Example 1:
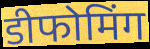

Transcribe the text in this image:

डीफोमिंग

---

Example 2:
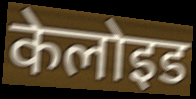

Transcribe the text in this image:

केलोइड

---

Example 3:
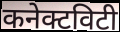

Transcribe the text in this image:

कनेक्टविटी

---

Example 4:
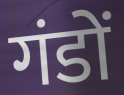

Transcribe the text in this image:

गंडों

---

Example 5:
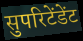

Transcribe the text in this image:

सुपरिटेंडेंट